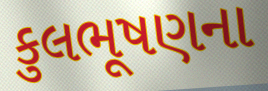
કુલભૂષણના